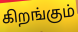
கிறங்கும்